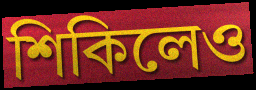
শিকিলেও